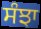
ਸੰਝਾ